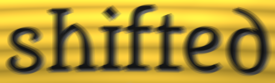
shifted